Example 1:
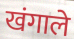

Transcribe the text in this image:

खंगाले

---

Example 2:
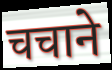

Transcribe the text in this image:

चचाने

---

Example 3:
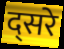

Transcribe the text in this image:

द्सरे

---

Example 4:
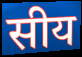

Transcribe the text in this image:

सीय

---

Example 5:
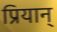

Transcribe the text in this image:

प्रियान्